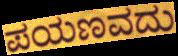
ಪಯಣವದು